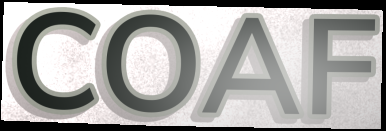
COAF